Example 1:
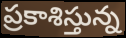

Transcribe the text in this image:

ప్రకాశిస్తున్న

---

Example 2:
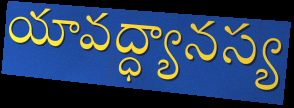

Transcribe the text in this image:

యావద్ధ్యానస్య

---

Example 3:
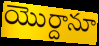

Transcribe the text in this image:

యొర్దానూ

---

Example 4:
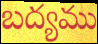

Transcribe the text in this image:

బద్యము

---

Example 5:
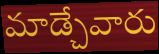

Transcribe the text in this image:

మాడ్చేవారు